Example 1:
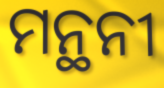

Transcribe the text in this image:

ମନ୍ଥନୀ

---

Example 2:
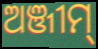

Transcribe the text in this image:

ଅଞ୍ଜୀମ୍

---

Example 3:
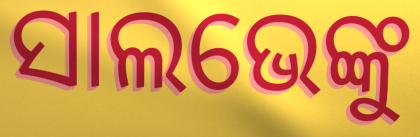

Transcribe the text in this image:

ସାଲଭେଙ୍କୁ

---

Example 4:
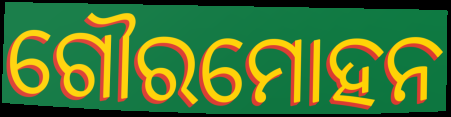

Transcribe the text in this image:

ଗୌରମୋହନ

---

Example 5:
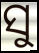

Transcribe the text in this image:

ସୁ